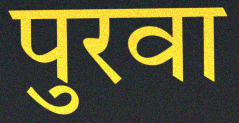
पुरवा